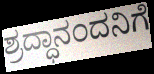
ಶ್ರದ್ಧಾನಂದನಿಗೆ